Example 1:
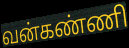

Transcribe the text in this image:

வன்கண்ணி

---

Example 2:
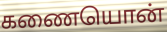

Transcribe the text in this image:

கணையொன்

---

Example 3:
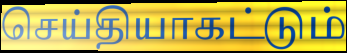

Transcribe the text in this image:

செய்தியாகட்டும்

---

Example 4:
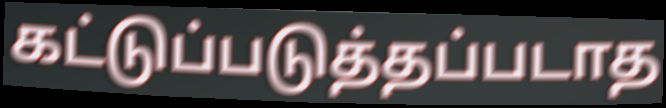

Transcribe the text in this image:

கட்டுப்படுத்தப்படாத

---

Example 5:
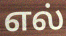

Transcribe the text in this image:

எல்